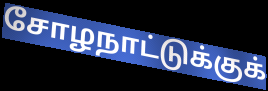
சோழநாட்டுக்குக்